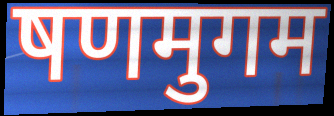
षणमुगम